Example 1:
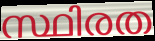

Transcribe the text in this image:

സ്ഥിരത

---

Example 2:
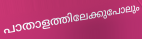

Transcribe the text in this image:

പാതാളത്തിലേക്കുപോലും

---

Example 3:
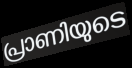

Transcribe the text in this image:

പ്രാണിയുടെ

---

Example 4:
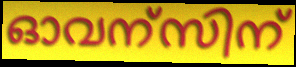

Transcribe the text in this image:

ഓവന്സിന്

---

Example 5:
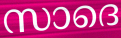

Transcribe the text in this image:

സാദെ